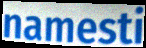
namesti